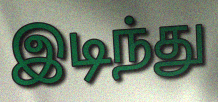
இடிந்து